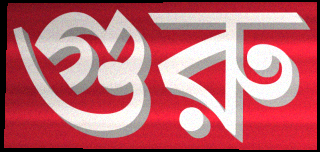
গুরু